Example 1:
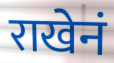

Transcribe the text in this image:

राखेनं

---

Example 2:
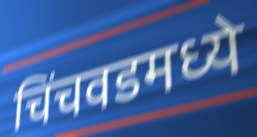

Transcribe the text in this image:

चिंचवडमध्ये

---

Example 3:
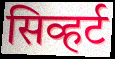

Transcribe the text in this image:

सिव्हर्ट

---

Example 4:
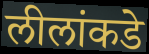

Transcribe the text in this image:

लीलांकडे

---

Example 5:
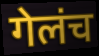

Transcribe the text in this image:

गेलंच